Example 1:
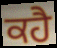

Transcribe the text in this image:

ਕਹੈ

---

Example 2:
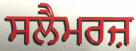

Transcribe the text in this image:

ਸਲੈਮਰਜ਼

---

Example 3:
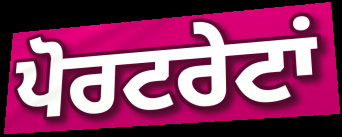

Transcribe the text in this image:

ਪੋਰਟਰੇਟਾਂ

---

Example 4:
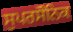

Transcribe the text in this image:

ਸੁਪਰਸੌਨਿਕ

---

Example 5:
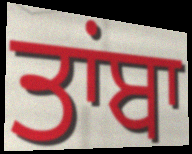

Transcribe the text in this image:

ਤਾਂਬਾ